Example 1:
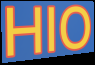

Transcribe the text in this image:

HIO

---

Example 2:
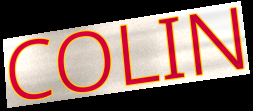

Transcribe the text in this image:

COLIN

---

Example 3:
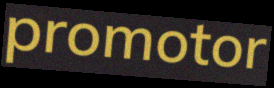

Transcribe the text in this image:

promotor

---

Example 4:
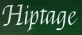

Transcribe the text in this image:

Hiptage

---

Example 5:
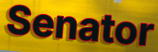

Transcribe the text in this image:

Senator